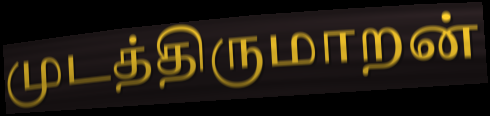
முடத்திருமாறன்